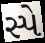
સ્પે